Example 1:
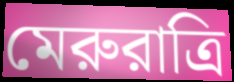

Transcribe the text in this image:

মেরুরাত্রি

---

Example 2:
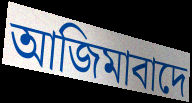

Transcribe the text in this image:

আজিমাবাদে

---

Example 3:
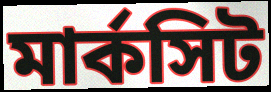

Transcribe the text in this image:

মার্কসিট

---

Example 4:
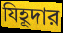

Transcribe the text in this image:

যিহূদার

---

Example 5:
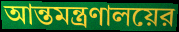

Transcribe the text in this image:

আন্তমন্ত্রণালয়ের